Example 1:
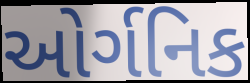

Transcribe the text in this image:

ઓર્ગનિક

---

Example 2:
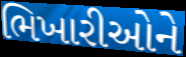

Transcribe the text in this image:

ભિખારીઓને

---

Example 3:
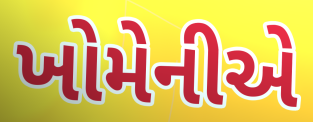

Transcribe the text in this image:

ખોમેનીએ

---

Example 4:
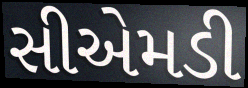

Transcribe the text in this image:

સીએમડી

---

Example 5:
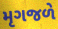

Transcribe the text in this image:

મૃગજળે